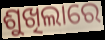
ଶୁଖିଲାରେ